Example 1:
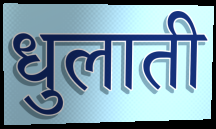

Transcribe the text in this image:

धुलाती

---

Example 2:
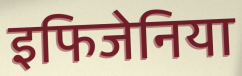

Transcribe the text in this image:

इफिजेनिया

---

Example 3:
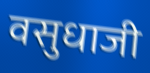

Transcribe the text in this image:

वसुधाजी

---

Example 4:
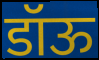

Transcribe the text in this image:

डॉऊ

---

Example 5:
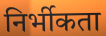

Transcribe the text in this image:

निर्भीकता